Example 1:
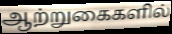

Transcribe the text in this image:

ஆற்றுகைகளில்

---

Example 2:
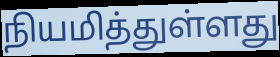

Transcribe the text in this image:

நியமித்துள்ளது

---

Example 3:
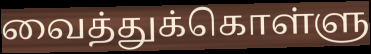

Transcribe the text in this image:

வைத்துக்கொள்ளு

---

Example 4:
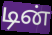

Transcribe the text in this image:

டின்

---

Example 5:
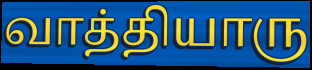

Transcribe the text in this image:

வாத்தியாரு